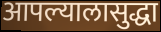
आपल्यालासुद्धा